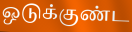
ஒடுக்குண்ட